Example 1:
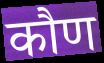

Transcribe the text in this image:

कौण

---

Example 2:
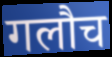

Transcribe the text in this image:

गलौच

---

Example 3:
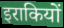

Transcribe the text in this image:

इराकियों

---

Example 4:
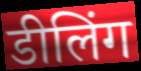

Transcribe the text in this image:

डीलिंग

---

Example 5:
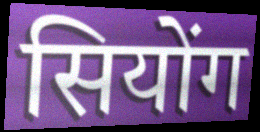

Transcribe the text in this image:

सियोंग